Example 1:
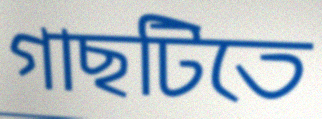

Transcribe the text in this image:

গাছটিতে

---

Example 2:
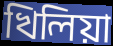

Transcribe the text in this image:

খিলিয়া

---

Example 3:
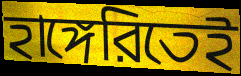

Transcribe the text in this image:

হাঙ্গেরিতেই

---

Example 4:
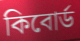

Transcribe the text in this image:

কিবোর্ড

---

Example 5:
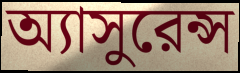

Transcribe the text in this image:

অ্যাসুরেন্স